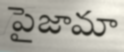
పైజామా